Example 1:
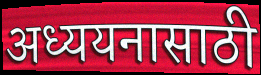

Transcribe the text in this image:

अध्ययनासाठी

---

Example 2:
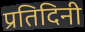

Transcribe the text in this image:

प्रतिदिनी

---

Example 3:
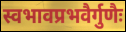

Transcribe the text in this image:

स्वभावप्रभवैर्गुणैः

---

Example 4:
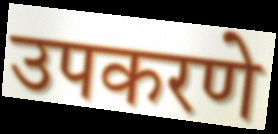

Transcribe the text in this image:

उपकरणे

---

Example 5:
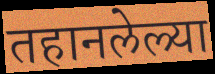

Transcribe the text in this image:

तहानलेल्या